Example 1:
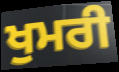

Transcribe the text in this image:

ਖੁਮਰੀ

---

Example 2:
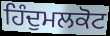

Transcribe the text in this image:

ਹਿੰਦੁਮਲਕੋਟ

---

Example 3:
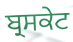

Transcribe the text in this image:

ਬ੍ਰਸਕੇਟ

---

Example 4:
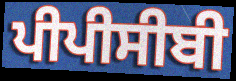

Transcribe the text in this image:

ਪੀਪੀਸੀਬੀ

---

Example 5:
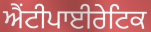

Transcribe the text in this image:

ਐਂਟੀਪਾਈਰੇਟਿਕ